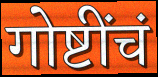
गोष्टींचं